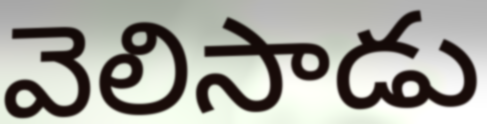
వెలిసాడు